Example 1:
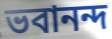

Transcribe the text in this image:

ভবানন্দ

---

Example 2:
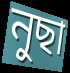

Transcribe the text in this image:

নুছা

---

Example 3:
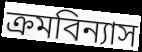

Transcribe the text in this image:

ক্ৰমবিন্যাস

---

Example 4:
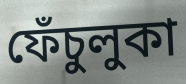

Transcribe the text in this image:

ফেঁচুলুকা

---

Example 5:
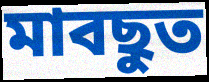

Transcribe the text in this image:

মাবছুত